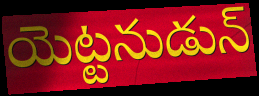
యెట్టనుడున్